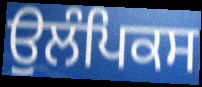
ਉਲੰਪਿਕਸ